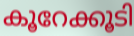
കൂറേക്കൂടി